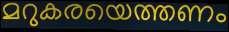
മറുകരയെത്തണം